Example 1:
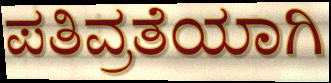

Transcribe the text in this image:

ಪತಿವ್ರತೆಯಾಗಿ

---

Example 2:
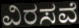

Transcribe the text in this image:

ವಿರಸವೆ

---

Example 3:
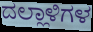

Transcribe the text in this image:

ದಲ್ಲಾಳಿಗಳ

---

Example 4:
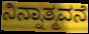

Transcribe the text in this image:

ನಿನ್ನಾತ್ಮವನೆ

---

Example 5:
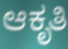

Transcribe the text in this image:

ಆಕೃತಿ